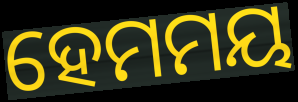
ହେମମୟ